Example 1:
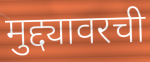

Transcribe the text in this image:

मुद्द्यावरची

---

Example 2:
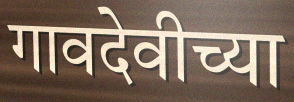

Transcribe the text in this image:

गावदेवीच्या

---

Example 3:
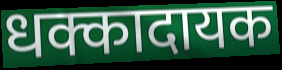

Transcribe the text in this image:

धक्कादायक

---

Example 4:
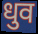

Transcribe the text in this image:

धुव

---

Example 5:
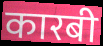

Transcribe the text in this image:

कारबी